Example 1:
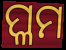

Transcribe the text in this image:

ପ୍ଳମ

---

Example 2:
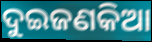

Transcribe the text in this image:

ଦୁଇଜଣକିଆ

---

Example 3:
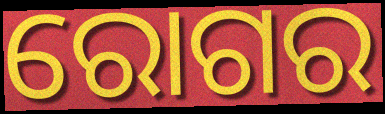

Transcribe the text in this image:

ରୋଗର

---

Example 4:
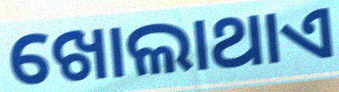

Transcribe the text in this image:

ଖୋଲାଥାଏ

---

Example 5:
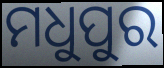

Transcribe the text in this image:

ମଧୁପୁର